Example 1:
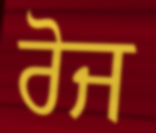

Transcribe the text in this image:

ਰੋਜ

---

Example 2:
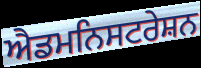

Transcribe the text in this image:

ਐਡਮਨਿਸਟਰੇਸ਼ਨ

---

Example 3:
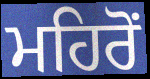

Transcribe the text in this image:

ਮਹਿਰੋਂ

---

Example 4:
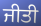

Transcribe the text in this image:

ਜੀਤੀ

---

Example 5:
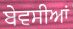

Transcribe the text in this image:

ਬੇਵਸੀਆਂ